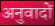
अनुवादों